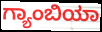
ಗ್ಯಾಂಬಿಯಾ